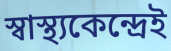
স্বাস্থ্যকেন্দ্রেই